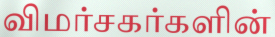
விமர்சகர்களின்